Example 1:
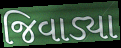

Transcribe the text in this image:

જિવાડ્યા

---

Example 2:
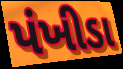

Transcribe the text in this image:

પંખીડા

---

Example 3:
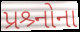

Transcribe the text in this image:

પ્રશ્ર્નોના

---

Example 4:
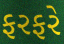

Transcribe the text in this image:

ફરફરે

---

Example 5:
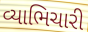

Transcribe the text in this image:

વ્યાભિચારી